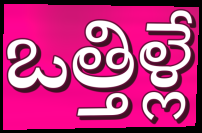
ఒత్తిళ్లే